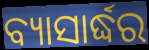
ବ୍ୟାସାର୍ଦ୍ଧର